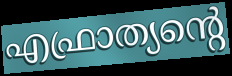
എഫ്രാത്യന്റെ